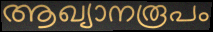
ആഖ്യാനരൂപം